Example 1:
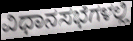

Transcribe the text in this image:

ವಿಧಾನಸಭೆಗಳಲ್ಲಿ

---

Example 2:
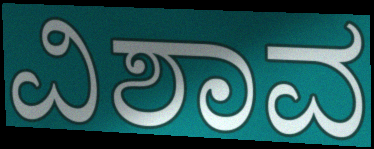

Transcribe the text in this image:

ವಿಶಾವ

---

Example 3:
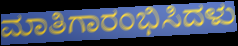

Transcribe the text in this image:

ಮಾತಿಗಾರಂಭಿಸಿದಳು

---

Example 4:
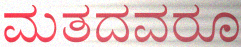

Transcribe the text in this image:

ಮತದವರೂ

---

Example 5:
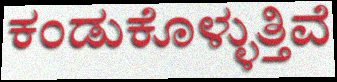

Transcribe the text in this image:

ಕಂಡುಕೊಳ್ಳುತ್ತಿವೆ